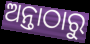
ଅନ୍ତାଠାରୁ